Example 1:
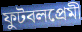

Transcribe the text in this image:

ফুটবলপ্রেমী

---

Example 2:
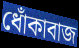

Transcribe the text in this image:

ধোঁকাবাজ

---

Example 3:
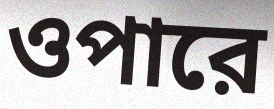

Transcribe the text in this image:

ওপারে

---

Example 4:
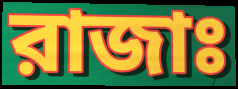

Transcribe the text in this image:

রাজাঃ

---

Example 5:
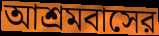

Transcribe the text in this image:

আশ্রমবাসের